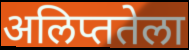
अलिप्ततेला